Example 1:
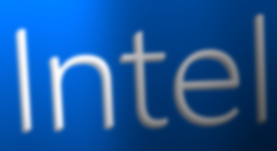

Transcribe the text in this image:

Intel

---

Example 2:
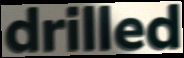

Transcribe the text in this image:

drilled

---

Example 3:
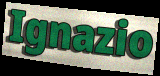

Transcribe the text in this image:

Ignazio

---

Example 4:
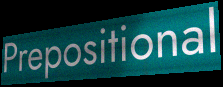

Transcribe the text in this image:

Prepositional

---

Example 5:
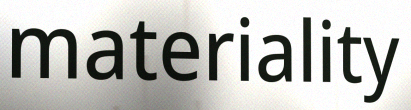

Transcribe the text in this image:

materiality